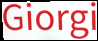
Giorgi